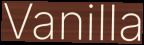
Vanilla